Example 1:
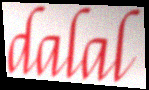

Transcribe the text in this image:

dalal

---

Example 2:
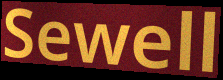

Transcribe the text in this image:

Sewell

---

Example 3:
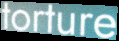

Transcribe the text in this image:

torture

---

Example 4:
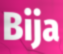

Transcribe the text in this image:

Bija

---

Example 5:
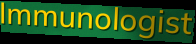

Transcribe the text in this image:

Immunologist